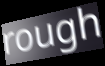
rough